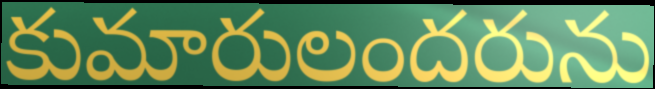
కుమారులందరును